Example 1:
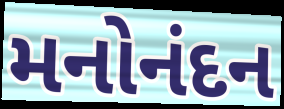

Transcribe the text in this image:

મનોનંદન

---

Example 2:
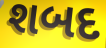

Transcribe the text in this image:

શબદ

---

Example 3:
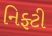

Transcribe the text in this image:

નિફ્ટી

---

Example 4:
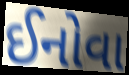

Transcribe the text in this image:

ઈનોવા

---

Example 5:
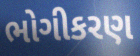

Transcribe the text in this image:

ભોગીકરણ